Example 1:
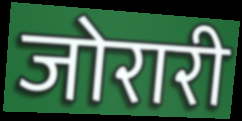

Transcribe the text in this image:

जोरारी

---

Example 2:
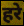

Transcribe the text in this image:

हरे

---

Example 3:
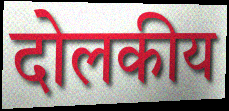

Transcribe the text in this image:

दोलकीय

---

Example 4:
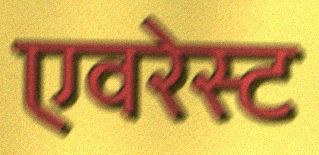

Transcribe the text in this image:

एवरेस्ट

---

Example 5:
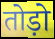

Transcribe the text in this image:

तोड़ो